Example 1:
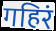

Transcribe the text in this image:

गहिरं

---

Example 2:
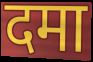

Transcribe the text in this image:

दमा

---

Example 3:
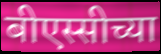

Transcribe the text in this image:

बीएस्सीच्या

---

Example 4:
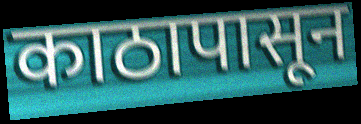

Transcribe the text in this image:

काठापासून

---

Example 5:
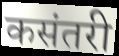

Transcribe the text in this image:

कसंतरी